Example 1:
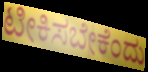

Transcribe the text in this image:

ಟೀಕಿಸಬೇಕೆಂದು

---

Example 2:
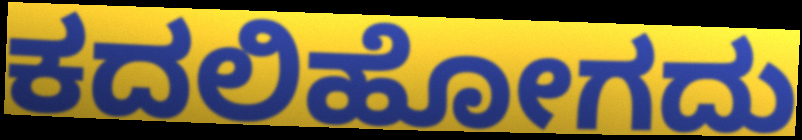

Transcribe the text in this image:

ಕದಲಿಹೋಗದು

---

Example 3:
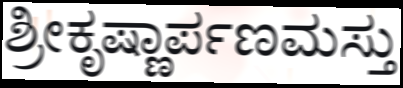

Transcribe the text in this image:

ಶ್ರೀಕೃಷ್ಣಾರ್ಪಣಮಸ್ತು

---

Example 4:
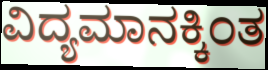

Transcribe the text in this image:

ವಿದ್ಯಮಾನಕ್ಕಿಂತ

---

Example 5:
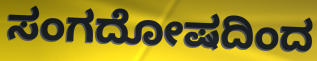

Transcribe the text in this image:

ಸಂಗದೋಷದಿಂದ